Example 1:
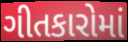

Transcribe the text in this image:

ગીતકારોમાં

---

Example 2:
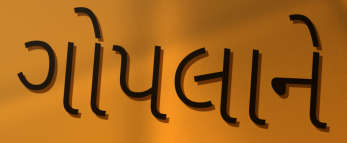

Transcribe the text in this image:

ગોપલાને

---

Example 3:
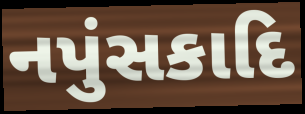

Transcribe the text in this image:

નપુંસકાદિ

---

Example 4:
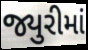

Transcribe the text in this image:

જ્યુરીમાં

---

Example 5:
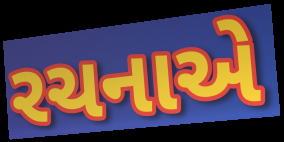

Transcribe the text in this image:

રચનાએ